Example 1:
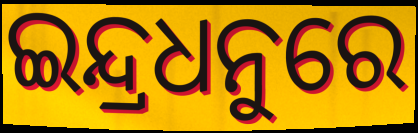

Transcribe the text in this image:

ଇନ୍ଦ୍ରଧନୁରେ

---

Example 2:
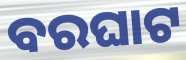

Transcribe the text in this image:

ବରଘାଟ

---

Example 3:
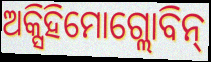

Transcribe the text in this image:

ଅକ୍ସିହିମୋଗ୍ଲୋବିନ୍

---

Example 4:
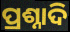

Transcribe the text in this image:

ପ୍ରଶ୍ନାଦି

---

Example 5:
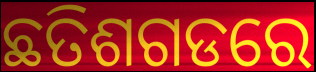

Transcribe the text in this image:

ଛତିଶଗଡରେ